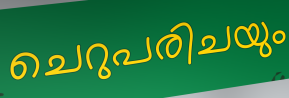
ചെറുപരിചയും